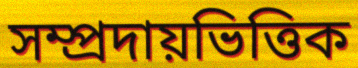
সম্প্ৰদায়ভিত্তিক